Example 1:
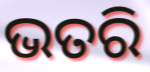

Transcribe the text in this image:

ଭତରି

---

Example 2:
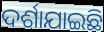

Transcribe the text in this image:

ଦର୍ଶାଯାଇଛି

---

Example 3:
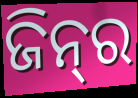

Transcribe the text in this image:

ଜିନ୍‍ର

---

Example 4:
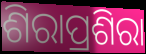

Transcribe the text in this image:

ଶିରାପ୍ରଶିରା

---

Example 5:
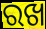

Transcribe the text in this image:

ରଖ